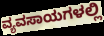
ವ್ಯವಸಾಯಗಳಲ್ಲಿ